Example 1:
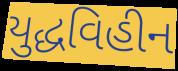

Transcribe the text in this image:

યુદ્ધવિહીન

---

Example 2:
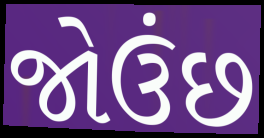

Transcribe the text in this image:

જોઉંછ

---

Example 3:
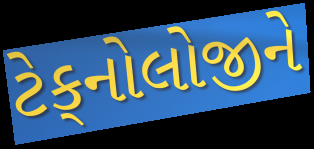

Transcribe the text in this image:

ટેક્‌નોલોજીને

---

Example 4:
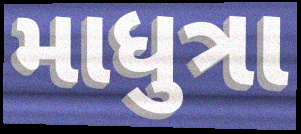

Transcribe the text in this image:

માધુત્રા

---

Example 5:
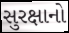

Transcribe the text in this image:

સુરક્ષાનો